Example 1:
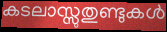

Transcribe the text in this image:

കടലാസ്സുതുണ്ടുകൾ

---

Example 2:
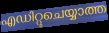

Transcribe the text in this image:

എഡിറ്റുചെയ്യാത്ത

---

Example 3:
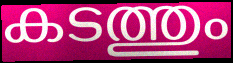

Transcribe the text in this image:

കടത്തും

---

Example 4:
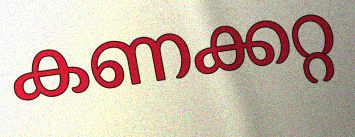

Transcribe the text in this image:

കണക്കറ്റ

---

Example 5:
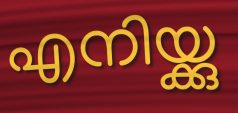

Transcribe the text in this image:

എനിയ്ക്കു